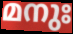
മനുഃ